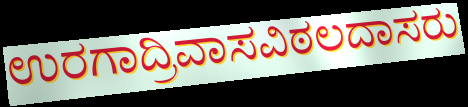
ಉರಗಾದ್ರಿವಾಸವಿಠಲದಾಸರು